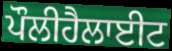
ਪੌਲੀਹੈਲਾਈਟ